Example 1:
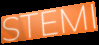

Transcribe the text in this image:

STEMI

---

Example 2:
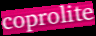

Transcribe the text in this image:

coprolite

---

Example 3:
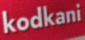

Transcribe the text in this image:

kodkani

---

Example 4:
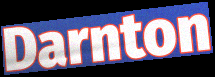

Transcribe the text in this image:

Darnton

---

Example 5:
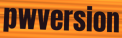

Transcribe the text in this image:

pwversion